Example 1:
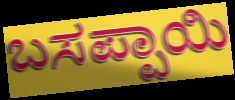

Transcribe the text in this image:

ಬಸಪ್ಪಾಯಿ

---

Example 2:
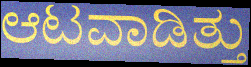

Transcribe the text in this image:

ಆಟವಾಡಿತ್ತು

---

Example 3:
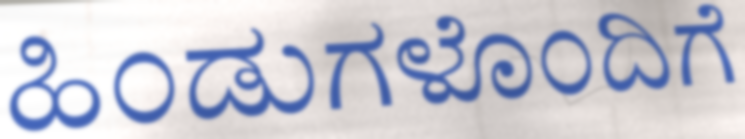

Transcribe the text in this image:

ಹಿಂಡುಗಳೊಂದಿಗೆ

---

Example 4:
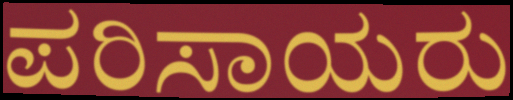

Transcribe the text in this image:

ಪರಿಸಾಯರು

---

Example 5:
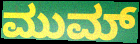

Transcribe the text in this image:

ಮುಮ್